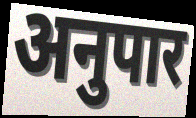
अनुपार